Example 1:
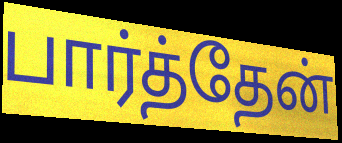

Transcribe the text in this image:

பார்த்தேன்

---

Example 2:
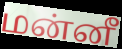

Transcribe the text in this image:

மன்னீ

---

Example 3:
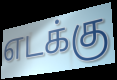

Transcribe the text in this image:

எடக்கு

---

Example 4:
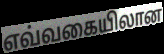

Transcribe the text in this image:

எவ்வகையிலான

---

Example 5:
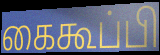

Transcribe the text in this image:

கைகூப்பி